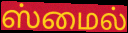
ஸ்மைல்